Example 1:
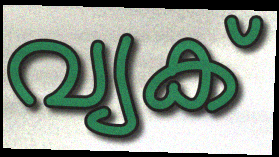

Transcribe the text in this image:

വ്യക്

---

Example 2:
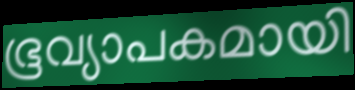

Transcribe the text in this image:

ഭൂവ്യാപകമായി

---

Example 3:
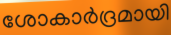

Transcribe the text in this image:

ശോകാർദ്രമായി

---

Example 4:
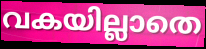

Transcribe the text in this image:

വകയില്ലാതെ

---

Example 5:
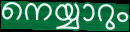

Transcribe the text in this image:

നെയ്യാറും